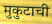
मुकुटाची